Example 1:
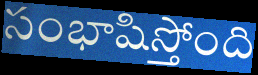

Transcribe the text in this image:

సంభాషిస్తోంది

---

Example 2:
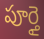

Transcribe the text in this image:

పూర్తై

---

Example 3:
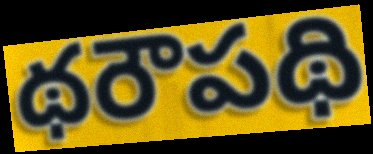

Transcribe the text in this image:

థరౌపథి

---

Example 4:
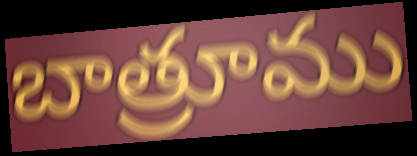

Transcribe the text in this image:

బాత్రూము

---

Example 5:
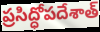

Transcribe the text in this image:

ప్రసిద్ధోపదేశాత్